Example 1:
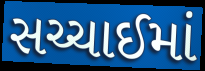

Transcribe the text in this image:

સચ્ચાઈમાં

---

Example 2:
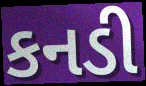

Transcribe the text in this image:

કનડી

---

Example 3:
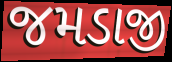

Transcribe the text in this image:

જમડાજી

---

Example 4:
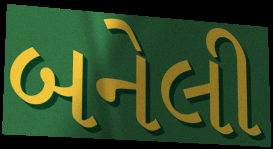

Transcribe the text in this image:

બનેલી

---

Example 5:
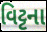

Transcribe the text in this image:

વિટ્ટના